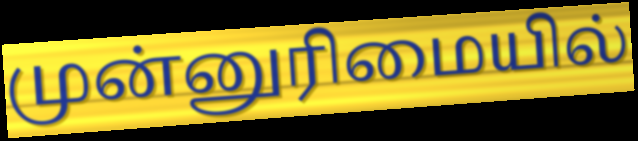
முன்னுரிமையில்